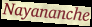
Nayananche